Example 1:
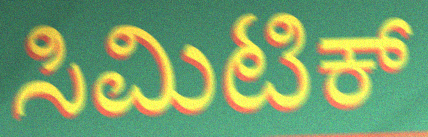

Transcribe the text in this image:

ಸಿಮಿಟಿಕ್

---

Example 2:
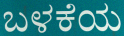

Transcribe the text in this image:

ಬಳಕೆಯ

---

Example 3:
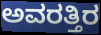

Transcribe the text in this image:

ಅವರತ್ತಿರ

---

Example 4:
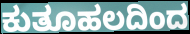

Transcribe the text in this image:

ಕುತೂಹಲದಿಂದ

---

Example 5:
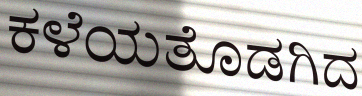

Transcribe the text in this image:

ಕಳೆಯತೊಡಗಿದ